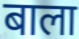
बाला